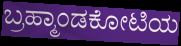
ಬ್ರಹ್ಮಾಂಡಕೋಟಿಯ